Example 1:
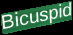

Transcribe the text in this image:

Bicuspid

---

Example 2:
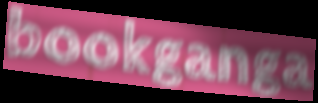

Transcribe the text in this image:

bookganga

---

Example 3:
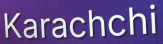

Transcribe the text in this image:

Karachchi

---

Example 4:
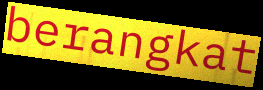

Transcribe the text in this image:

berangkat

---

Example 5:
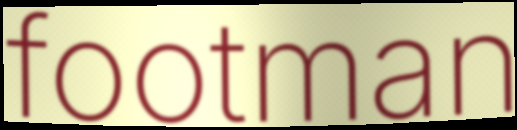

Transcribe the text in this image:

footman